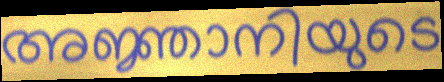
അജ്ഞാനിയുടെ